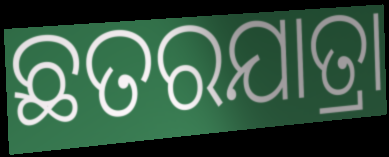
ଛତରଯାତ୍ରା